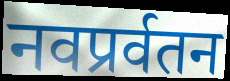
नवप्रर्वतन